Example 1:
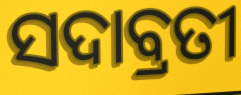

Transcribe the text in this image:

ସଦାବ୍ରତୀ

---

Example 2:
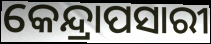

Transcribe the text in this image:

କେନ୍ଦ୍ରାପସାରୀ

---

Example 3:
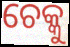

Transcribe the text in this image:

ଚେକ୍କୁ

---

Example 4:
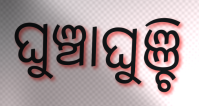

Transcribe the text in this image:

ଘୁଞ୍ଚାଘୁଞ୍ଚି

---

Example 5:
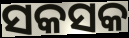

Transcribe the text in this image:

ସକସକ